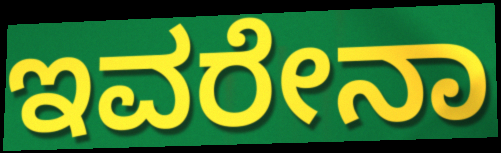
ಇವರೇನಾ